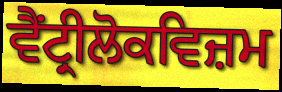
ਵੈਂਟ੍ਰੀਲੋਕਵਿਜ਼ਮ